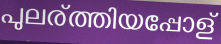
പുലര്ത്തിയപ്പോള്